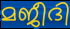
മജീദി